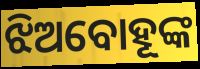
ଝିଅବୋହୂଙ୍କ